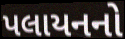
પલાયનનો